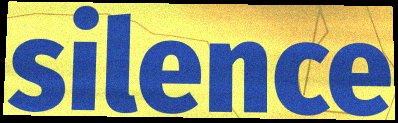
silence